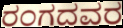
ರಂಗದವರ